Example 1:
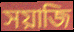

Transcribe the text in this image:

সয়াজি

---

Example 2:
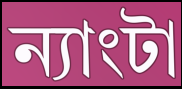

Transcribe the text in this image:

ন্যাংটা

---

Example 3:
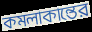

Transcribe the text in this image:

কমলাকান্তের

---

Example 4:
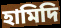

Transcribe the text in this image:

হামিদি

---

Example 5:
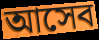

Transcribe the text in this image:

আসেব